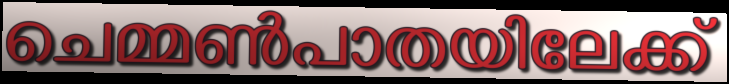
ചെമ്മൺപാതയിലേക്ക്